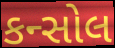
કન્સોલ